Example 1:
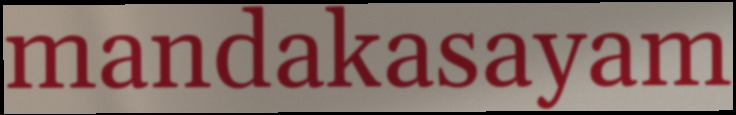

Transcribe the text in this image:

mandakasayam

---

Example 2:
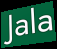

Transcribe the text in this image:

Jala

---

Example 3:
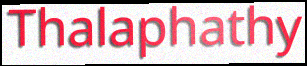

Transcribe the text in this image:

Thalaphathy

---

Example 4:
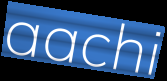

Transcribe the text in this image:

aachi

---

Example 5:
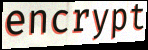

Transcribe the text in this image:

encrypt